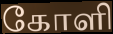
கோளி